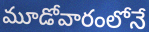
మూడోవారంలోనే